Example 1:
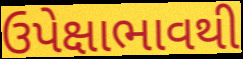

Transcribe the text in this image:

ઉપેક્ષાભાવથી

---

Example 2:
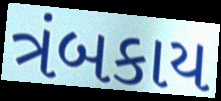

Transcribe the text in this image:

ત્રંબકાય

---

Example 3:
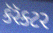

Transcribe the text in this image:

કૅરૅક્ટર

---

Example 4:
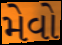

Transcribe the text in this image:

મેવો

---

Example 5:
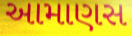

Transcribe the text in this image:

આમાણસ